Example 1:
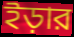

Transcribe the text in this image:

ইড়ার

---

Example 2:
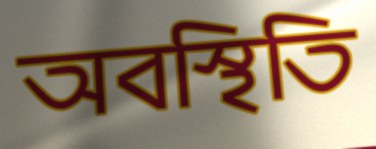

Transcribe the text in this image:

অবস্থিতি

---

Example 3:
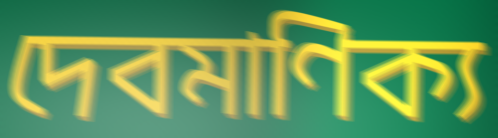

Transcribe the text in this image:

দেবমাণিক্য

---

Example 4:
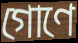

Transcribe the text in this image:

গোণে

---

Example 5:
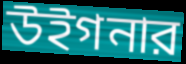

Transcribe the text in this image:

উইগনার